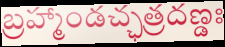
బ్రహ్మాండచ్ఛత్రదణ్డః